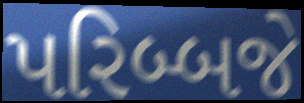
પરિબ્બજે